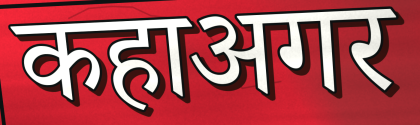
कहाअगर